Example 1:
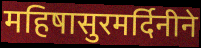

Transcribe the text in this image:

महिषासुरमर्दिनीने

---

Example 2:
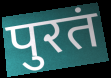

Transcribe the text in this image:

पुरतं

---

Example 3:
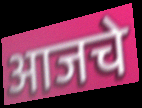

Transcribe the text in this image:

आजचे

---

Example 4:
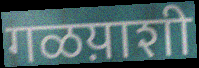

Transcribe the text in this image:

गळय़ाशी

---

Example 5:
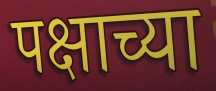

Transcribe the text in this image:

पक्षाच्या